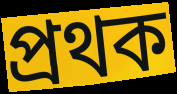
প্রথক